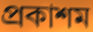
প্ৰকাশম